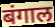
बंगाल